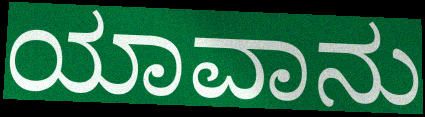
ಯಾವಾನು